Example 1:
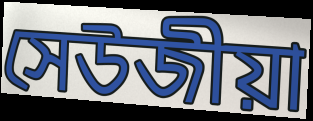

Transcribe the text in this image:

সেউজীয়া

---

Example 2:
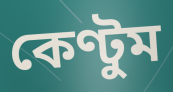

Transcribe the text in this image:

কেণ্টুম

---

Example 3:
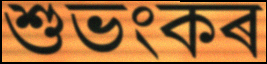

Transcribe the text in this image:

শুভংকৰ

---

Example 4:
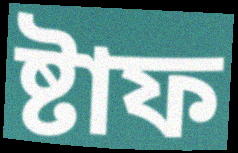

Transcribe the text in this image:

ষ্টাফ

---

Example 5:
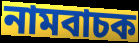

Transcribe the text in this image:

নামবাচক